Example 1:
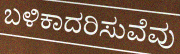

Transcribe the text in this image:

ಬಳಿಕಾದರಿಸುವೆವು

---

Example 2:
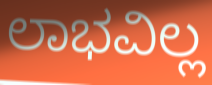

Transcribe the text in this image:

ಲಾಭವಿಲ್ಲ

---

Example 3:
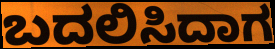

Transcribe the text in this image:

ಬದಲಿಸಿದಾಗ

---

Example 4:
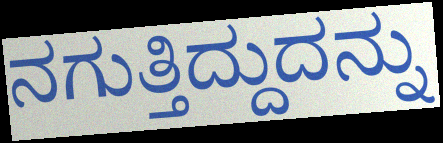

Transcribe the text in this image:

ನಗುತ್ತಿದ್ದುದನ್ನು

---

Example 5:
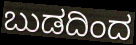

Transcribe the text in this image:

ಬುಡದಿಂದ